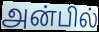
அன்பில்